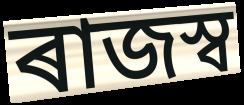
ৰাজস্ব